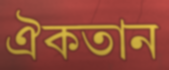
ঐকতান